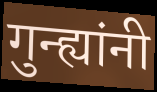
गुन्ह्यांनी